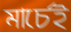
মার্চেই